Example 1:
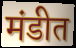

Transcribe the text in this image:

मंडीत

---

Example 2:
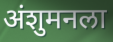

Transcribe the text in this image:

अंशुमनला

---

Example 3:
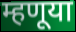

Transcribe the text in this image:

म्हणूया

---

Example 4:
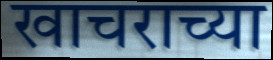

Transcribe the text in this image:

खाचराच्या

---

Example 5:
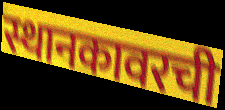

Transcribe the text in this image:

स्थानकावरची